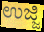
ಉಜ್ಜಿ